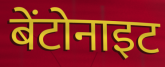
बेंटोनाइट